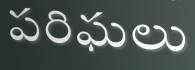
పరిఘలు